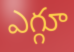
ఎగ్గూ